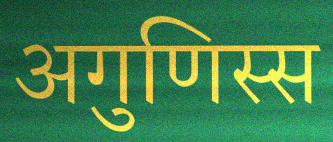
अगुणिस्स